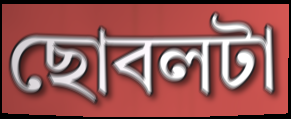
ছোবলটা